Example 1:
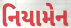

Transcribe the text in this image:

નિયામેન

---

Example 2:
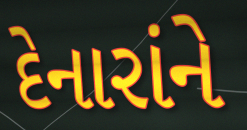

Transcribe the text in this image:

દેનારાંને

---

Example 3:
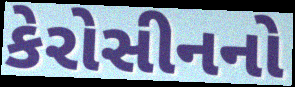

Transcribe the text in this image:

કેરોસીનનો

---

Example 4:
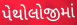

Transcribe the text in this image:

પેથોલોજીમાં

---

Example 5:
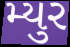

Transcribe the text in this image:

મ્યુર